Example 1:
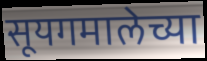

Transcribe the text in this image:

सूयगमालेच्या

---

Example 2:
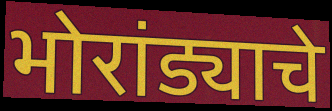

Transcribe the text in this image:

भोरांड्याचे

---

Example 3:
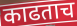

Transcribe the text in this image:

काढताच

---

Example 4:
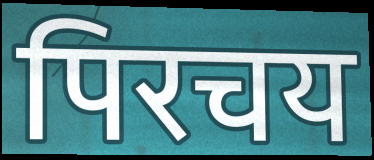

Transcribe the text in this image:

पिरचय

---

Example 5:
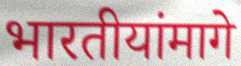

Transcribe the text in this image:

भारतीयांमागे